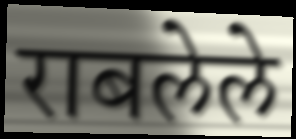
राबलेले